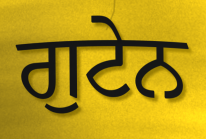
ਗੁਟੇਨ